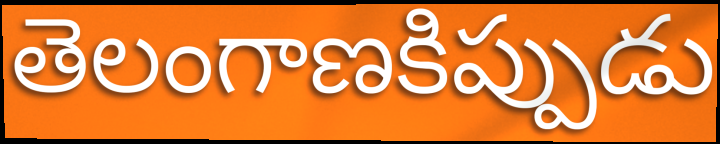
తెలంగాణకిప్పుడు